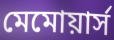
মেমোয়ার্স